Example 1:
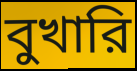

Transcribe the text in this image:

বুখারি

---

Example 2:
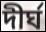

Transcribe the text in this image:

দীর্ঘ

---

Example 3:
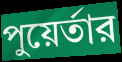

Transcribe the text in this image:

পুয়ের্তার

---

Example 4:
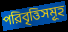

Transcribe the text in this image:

পরিবৃত্তিসমূহ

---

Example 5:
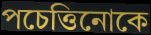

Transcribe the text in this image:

পচেত্তিনোকে